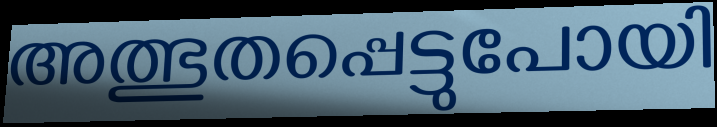
അത്ഭുതപ്പെട്ടുപോയി